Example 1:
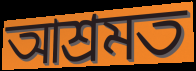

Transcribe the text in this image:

আশ্ৰমত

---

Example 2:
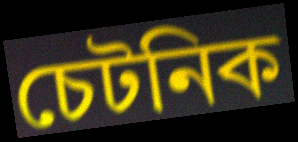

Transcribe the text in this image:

চেটনিক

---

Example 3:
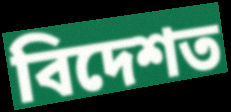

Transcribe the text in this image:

বিদেশত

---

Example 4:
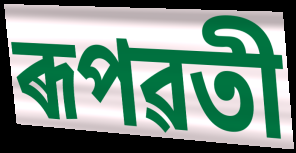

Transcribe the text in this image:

ৰূপৱতী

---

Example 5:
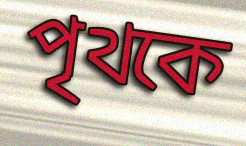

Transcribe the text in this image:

পৃথকে